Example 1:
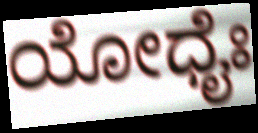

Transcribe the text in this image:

ಯೋಧೈಃ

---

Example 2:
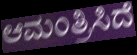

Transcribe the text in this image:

ಆಮಂತ್ರಿಸಿದೆ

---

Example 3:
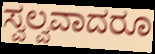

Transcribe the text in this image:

ಸ್ವಲ್ವವಾದರೂ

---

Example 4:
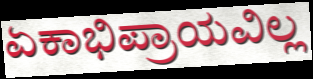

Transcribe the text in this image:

ಏಕಾಭಿಪ್ರಾಯವಿಲ್ಲ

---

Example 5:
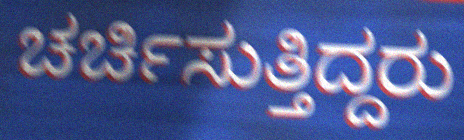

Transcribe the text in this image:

ಚರ್ಚಿಸುತ್ತಿದ್ದರು